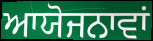
ਆਯੋਜਨਾਵਾਂ